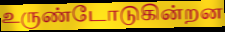
உருண்டோடுகின்றன